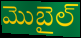
మొబైల్